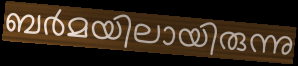
ബർമയിലായിരുന്നു